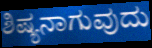
ಶಿಷ್ಯನಾಗುವುದು